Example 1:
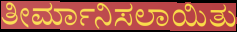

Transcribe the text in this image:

ತೀರ್ಮಾನಿಸಲಾಯಿತು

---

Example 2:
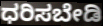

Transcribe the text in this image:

ಧರಿಸಬೇಡಿ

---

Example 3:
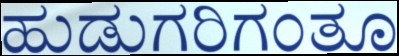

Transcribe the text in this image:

ಹುಡುಗರಿಗಂತೂ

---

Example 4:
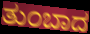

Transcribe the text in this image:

ತುಂಬಾದ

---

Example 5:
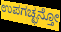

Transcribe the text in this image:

ಉಪಗಚ್ಛನ್ತೋ